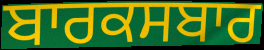
ਬਾਰਕਸਬਾਰ